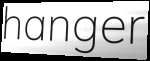
hanger